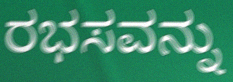
ರಭಸವನ್ನು